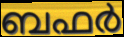
ബഫർ